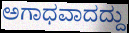
ಅಗಾಧವಾದದ್ದು